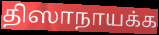
திஸாநாயக்க